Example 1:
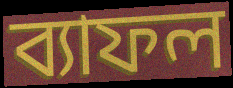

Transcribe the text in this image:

ব্যাফল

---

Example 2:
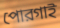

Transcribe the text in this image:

পোরগাই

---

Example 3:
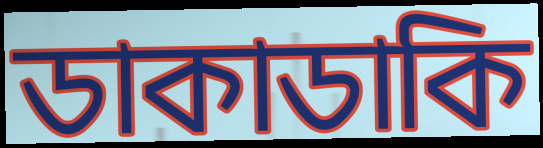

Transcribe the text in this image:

ডাকাডাকি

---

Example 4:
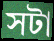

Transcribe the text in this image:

সটা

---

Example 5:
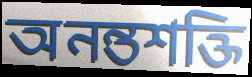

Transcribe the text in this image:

অনন্তশক্তি